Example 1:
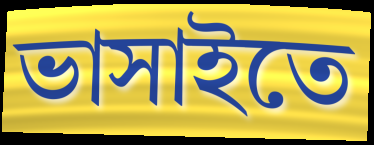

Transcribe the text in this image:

ভাসাইতে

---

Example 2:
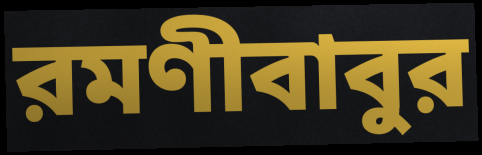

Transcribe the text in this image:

রমণীবাবুর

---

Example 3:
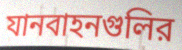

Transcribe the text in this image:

যানবাহনগুলির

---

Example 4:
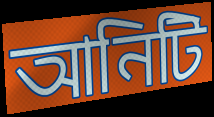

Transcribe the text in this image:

আনিটি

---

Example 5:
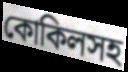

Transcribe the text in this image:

কোকিলসহ